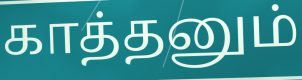
காத்தனும்